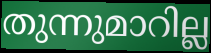
തുന്നുമാറില്ല